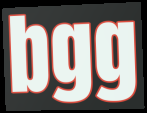
bgg